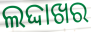
ଲଦ୍ଦାଖର